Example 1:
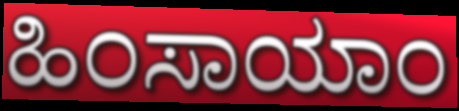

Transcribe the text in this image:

ಹಿಂಸಾಯಾಂ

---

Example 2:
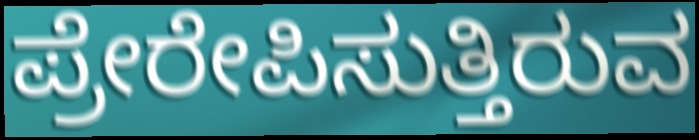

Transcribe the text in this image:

ಪ್ರೇರೇಪಿಸುತ್ತಿರುವ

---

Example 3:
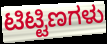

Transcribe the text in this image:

ಟಿಟ್ಟಿಣಗಳು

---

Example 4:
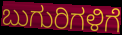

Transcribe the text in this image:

ಬುಗುರಿಗಳಿಗೆ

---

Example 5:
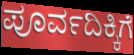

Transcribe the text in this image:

ಪೂರ್ವದಿಕ್ಕಿಗೆ